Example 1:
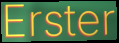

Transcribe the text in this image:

Erster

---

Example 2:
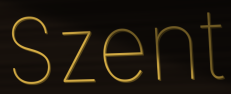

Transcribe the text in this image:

Szent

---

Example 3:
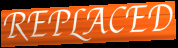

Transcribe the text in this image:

REPLACED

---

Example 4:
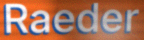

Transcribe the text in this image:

Raeder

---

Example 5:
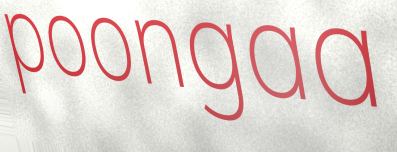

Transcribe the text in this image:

poongaa